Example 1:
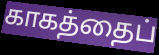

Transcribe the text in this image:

காகத்தைப்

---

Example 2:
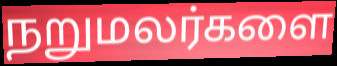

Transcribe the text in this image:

நறுமலர்களை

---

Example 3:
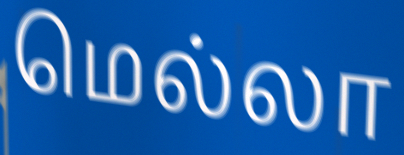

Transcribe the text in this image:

மெல்லா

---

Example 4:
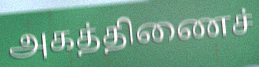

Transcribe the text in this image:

அகத்திணைச்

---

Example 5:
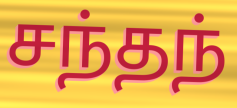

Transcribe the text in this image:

சந்தந்